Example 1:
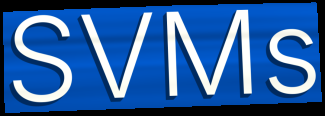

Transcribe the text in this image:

SVMs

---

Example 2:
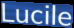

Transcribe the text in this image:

Lucile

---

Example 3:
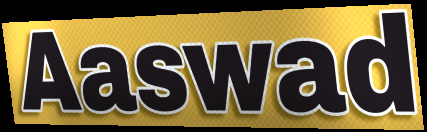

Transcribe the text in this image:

Aaswad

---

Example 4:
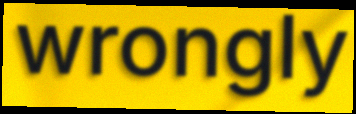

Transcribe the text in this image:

wrongly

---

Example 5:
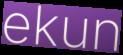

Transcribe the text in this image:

ekun